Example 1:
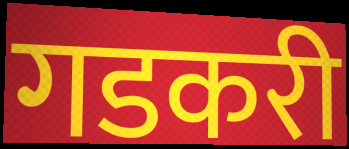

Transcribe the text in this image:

गडकरी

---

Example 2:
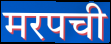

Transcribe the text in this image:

मरपची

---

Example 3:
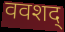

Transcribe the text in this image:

ववशद्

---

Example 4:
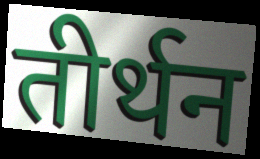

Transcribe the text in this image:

तीर्थन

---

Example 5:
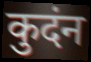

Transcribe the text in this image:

कुदंन